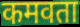
कमवता